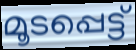
മൂടപ്പെട്ട്